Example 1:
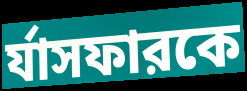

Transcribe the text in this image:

র্যাসফারকে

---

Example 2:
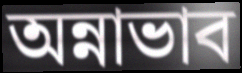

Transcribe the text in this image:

অন্নাভাব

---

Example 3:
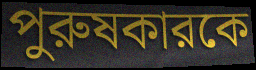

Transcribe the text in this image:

পুরুষকারকে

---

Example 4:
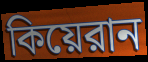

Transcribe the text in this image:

কিয়েরান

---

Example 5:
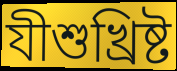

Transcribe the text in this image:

যীশুখ্রিষ্ট